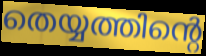
തെയ്യത്തിന്റെ